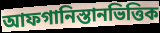
আফগানিস্তানভিত্তিক